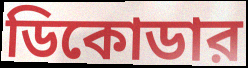
ডিকোডার